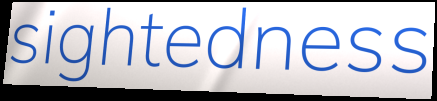
sightedness